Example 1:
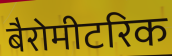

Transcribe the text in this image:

बैरोमीटरिक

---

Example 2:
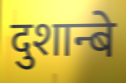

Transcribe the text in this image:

दुशान्बे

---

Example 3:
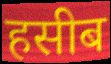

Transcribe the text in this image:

हसीब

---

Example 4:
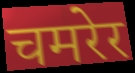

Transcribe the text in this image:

चमरेर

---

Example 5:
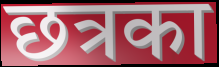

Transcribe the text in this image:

छत्रका